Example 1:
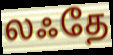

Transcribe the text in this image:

லஃதே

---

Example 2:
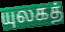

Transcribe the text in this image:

யுலகத்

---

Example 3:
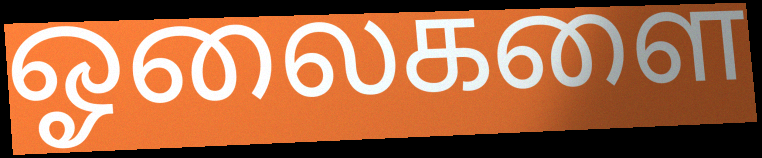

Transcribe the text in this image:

ஓலைகளை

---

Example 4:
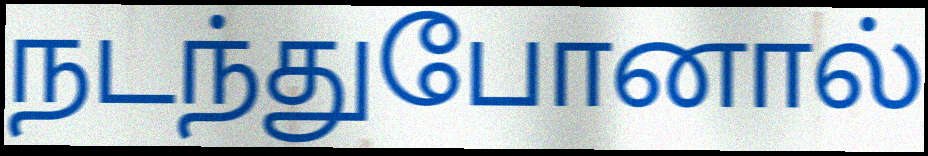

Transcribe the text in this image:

நடந்துபோனால்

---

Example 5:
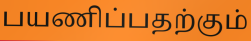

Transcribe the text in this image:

பயணிப்பதற்கும்